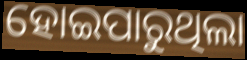
ହୋଇପାରୁଥିଲା